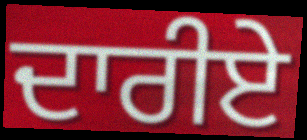
ਦਾਰੀਏ